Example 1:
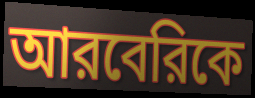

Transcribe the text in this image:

আরবেরিকে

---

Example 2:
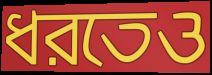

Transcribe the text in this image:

ধরতেও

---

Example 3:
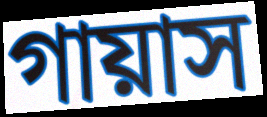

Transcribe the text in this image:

গায়াস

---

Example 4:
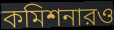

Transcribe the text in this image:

কমিশনারও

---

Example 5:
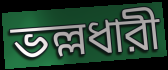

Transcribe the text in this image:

ভল্লধারী